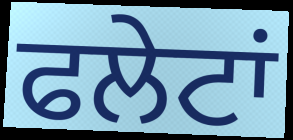
ਫਲੇਟਾਂ